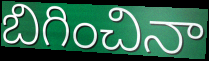
బిగించినా